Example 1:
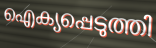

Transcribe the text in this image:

ഐക്യപ്പെടുത്തി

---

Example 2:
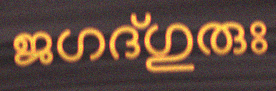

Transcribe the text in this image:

ജഗദ്ഗുരുഃ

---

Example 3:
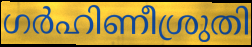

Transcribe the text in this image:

ഗർഹിണീശ്രുതി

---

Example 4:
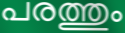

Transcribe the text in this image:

പരത്തും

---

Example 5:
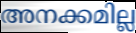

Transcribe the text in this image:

അനക്കമില്ല